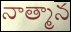
నాత్మాన